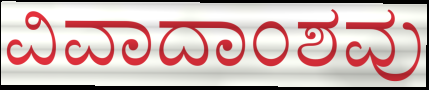
ವಿವಾದಾಂಶವು